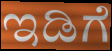
ಇಡಿಗೆ